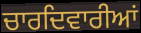
ਚਾਰਦਿਵਾਰੀਆਂ